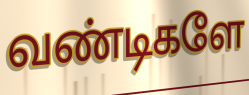
வண்டிகளே